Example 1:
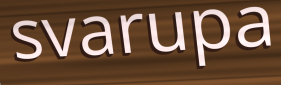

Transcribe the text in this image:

svarupa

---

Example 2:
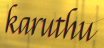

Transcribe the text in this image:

karuthu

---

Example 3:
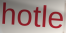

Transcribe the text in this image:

hotle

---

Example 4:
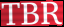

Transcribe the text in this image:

TBR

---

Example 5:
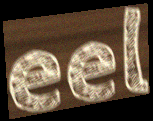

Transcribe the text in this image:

eel